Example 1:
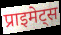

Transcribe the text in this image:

प्राइमेट्स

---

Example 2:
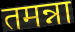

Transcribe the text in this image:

तमन्ना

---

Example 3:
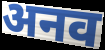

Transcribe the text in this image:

अनव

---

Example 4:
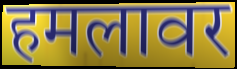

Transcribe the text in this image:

हमलावर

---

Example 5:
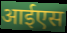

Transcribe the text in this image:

आईएस